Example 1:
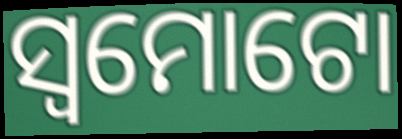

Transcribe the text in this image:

ସ୍ୱମୋଟୋ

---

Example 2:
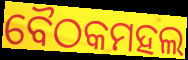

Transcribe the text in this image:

ବୈଠକମହଲ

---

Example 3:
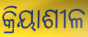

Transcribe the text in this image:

କ୍ରିୟାଶୀଳ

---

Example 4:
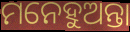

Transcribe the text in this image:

ମନେହୁଅନ୍ତା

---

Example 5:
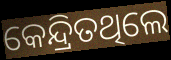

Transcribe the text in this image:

କେନ୍ଦ୍ରିତଥିଲେ